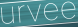
urvee